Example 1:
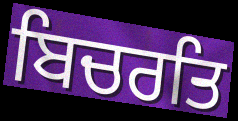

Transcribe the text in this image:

ਬਿਚਰਤਿ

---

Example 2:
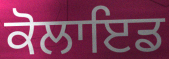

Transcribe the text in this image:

ਕੋਲਾਇਡ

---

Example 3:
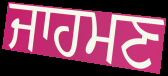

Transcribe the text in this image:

ਜਾਹਮਣ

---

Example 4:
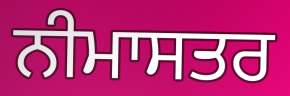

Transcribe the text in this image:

ਨੀਮਾਸਤਰ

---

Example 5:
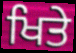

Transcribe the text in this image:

ਖਿਤੇ